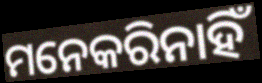
ମନେକରିନାହିଁ